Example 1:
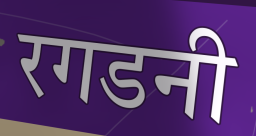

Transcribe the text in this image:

रगडनी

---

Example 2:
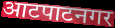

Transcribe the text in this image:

आटपाटनगर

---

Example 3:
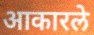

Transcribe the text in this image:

आकारले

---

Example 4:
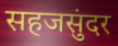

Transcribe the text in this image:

सहजसुंदर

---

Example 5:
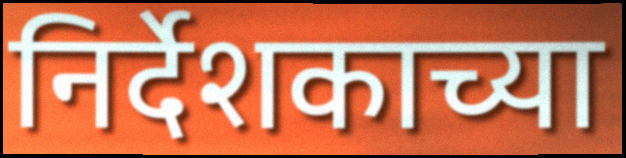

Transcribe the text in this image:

निर्देशकाच्या